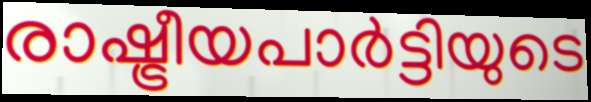
രാഷ്ട്രീയപാർട്ടിയുടെ